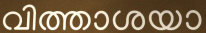
വിത്താശയാ